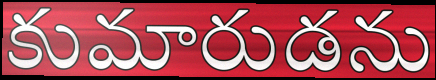
కుమారుడను